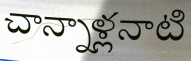
చాన్నాళ్లనాటి